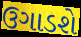
ઉગાડશે